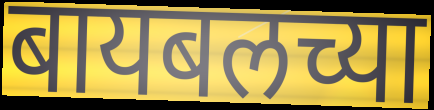
बायबलच्या